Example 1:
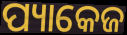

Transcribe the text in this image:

ପ୍ୟାକେଜ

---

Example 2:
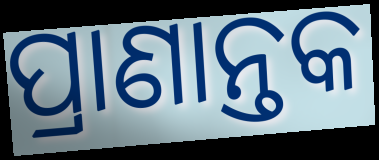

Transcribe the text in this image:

ପ୍ରାଣାନ୍ତକ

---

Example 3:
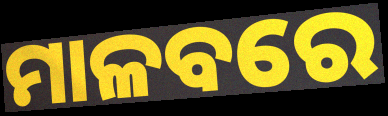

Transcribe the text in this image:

ମାଳବରେ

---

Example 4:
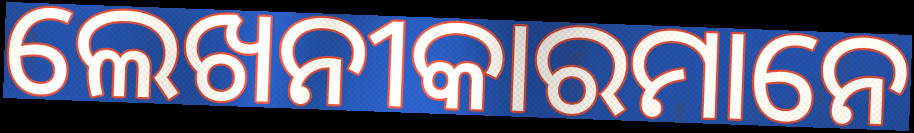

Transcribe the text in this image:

ଲେଖନୀକାରମାନେ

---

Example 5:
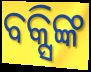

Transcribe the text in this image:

ବକ୍ସିଙ୍କ